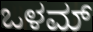
ಒಳಮ್